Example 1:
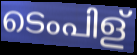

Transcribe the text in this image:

ടെംപിള്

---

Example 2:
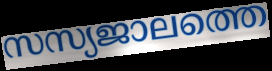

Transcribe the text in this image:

സസ്യജാലത്തെ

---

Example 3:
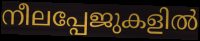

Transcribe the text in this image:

നീലപ്പേജുകളിൽ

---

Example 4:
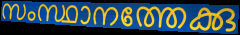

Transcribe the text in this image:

സംസ്ഥാനത്തേക്കു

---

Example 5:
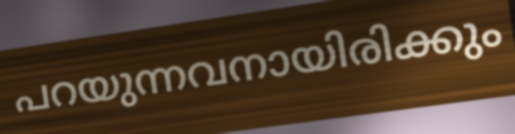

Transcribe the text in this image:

പറയുന്നവനായിരിക്കും